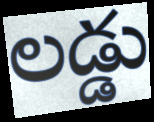
లడ్డు